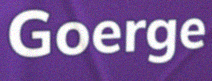
Goerge